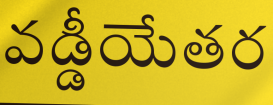
వడ్డీయేతర